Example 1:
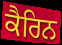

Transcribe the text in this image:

ਕੈਰਿਨ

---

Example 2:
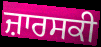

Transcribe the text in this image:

ਜ਼ਾਰਸਕੀ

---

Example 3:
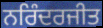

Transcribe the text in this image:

ਨਰਿੰਦਰਜੀਤ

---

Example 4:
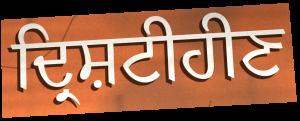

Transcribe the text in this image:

ਦ੍ਰਿਸ਼ਟੀਹੀਣ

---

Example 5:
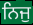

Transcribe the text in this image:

ਨਿਜੁ